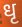
धृ